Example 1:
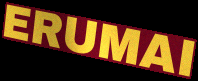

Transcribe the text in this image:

ERUMAI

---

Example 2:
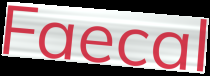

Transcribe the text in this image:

Faecal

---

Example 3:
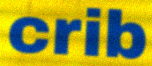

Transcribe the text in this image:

crib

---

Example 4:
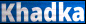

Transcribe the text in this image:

Khadka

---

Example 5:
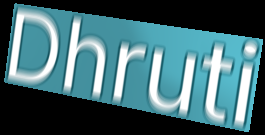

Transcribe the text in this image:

Dhruti